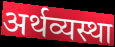
अर्थव्यस्था